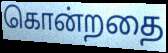
கொன்றதை